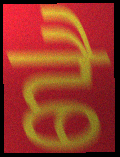
ਛੈ